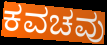
ಕವಚವು